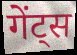
गेंट्स